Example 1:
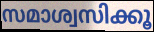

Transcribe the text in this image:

സമാശ്വസിക്കൂ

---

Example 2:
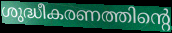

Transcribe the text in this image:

ശുദ്ധീകരണത്തിന്റെ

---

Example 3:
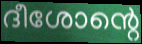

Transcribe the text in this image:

ദീശോന്റെ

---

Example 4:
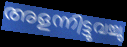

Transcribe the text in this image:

അളന്നിട്ടുവച്ചു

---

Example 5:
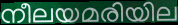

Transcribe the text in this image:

നീലയമരിയില